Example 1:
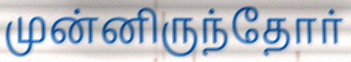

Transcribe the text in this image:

முன்னிருந்தோர்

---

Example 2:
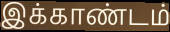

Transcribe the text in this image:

இக்காண்டம்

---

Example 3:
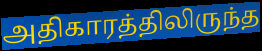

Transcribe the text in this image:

அதிகாரத்திலிருந்த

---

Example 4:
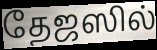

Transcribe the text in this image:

தேஜஸில்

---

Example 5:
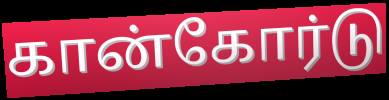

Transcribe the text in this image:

கான்கோர்டு